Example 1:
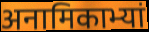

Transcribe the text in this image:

अनामिकाभ्यां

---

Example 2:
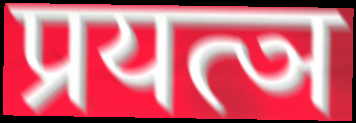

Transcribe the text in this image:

प्रयत्ञ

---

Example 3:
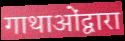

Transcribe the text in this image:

गाथाओंद्वारा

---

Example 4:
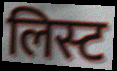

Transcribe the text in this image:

लिस्‍ट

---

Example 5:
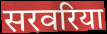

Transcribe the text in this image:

सरवरिया